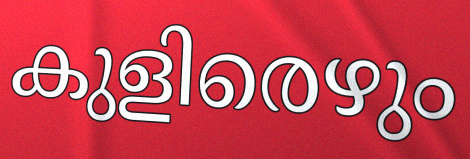
കുളിരെഴും